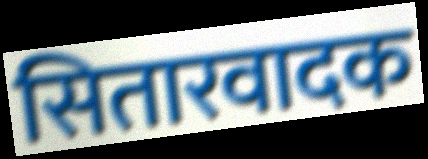
सितारवादक